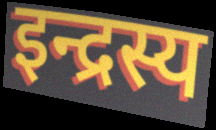
इन्द्रस्य